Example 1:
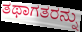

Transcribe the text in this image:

ತಥಾಗತರನ್ನು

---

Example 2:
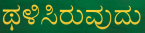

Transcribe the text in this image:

ಥಳಿಸಿರುವುದು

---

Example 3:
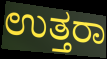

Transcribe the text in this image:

ಉತ್ತರಾ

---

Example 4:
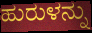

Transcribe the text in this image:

ಹುರುಳನ್ನು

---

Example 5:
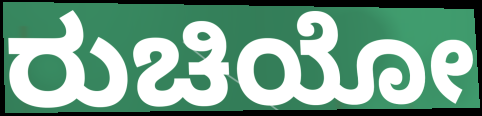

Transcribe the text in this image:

ರುಚಿಯೋ